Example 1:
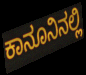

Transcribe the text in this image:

ಕಾನೂನಿನಲ್ಲಿ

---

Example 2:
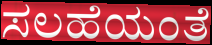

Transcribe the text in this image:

ಸಲಹೆಯಂತೆ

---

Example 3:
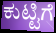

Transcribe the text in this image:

ಕುಟ್ಟಿಗೆ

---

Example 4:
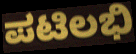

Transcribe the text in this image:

ಪಟಿಲಭಿ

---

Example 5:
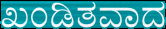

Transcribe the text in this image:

ಖಂಡಿತವಾದ